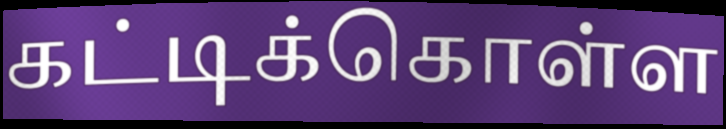
கட்டிக்கொள்ள